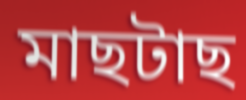
মাছটাছ